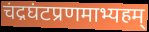
चंद्रघंटप्रणमाभ्यहम्